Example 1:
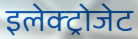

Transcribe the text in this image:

इलेक्ट्रोजेट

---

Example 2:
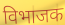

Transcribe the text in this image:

विभाजक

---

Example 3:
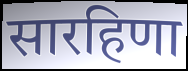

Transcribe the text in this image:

सारहिणा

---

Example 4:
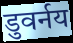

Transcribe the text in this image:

डुवर्नय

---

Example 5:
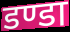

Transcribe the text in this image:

डण्डा